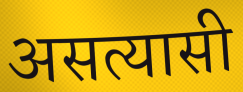
असत्यासी